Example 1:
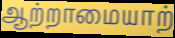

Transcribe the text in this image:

ஆற்றாமையாற்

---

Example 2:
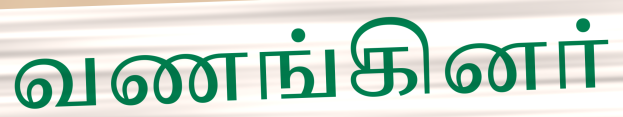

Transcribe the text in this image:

வணங்கினர்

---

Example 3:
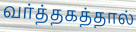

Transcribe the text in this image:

வர்த்தகத்தால்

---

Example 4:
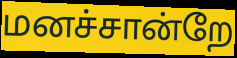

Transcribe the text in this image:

மனச்சான்றே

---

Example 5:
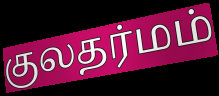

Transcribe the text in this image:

குலதர்மம்